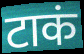
टाकं